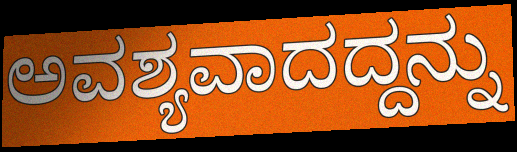
ಅವಶ್ಯವಾದದ್ದನ್ನು